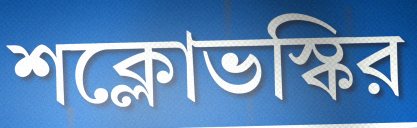
শক্লোভস্কির